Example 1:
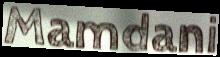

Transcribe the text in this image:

Mamdani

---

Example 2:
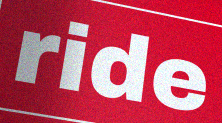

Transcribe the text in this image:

ride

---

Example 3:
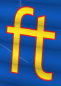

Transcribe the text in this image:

ft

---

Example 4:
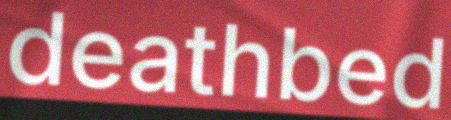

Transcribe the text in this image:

deathbed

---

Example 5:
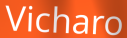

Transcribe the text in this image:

Vicharo